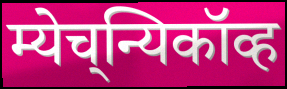
म्येच्‌न्यिकॉव्ह